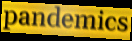
pandemics